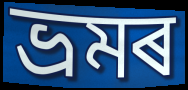
ভ্ৰমৰ